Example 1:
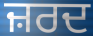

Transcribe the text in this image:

ਜ਼ਰਦ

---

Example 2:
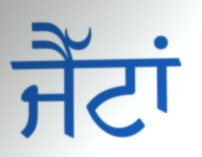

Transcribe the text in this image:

ਜੈੱਟਾਂ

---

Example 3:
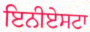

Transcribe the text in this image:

ਇਨੀਏਸਟਾ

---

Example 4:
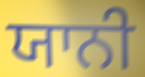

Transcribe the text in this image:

ਯਾਨੀ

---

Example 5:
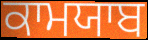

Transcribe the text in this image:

ਕਾਮਯਾਬ